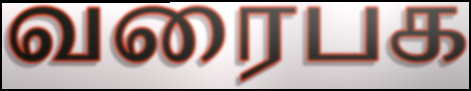
வரைபக